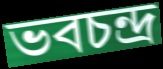
ভবচন্দ্র